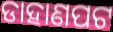
ଡାହାଣପଟ